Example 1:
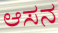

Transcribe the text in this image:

ಆಸನ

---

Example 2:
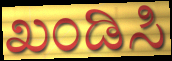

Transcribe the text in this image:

ಖಂಡಿಸಿ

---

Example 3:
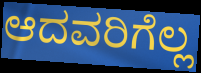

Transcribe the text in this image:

ಆದವರಿಗೆಲ್ಲ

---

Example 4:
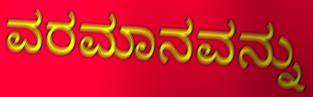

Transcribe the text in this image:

ವರಮಾನವನ್ನು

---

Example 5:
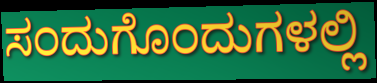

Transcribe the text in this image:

ಸಂದುಗೊಂದುಗಳಲ್ಲಿ